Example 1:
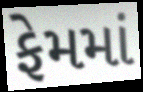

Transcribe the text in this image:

ફેમમાં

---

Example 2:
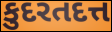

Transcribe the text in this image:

કુદરતદત્ત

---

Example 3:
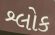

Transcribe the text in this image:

શ્લોક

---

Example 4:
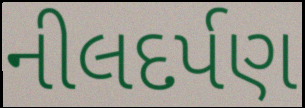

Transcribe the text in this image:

નીલદર્પણ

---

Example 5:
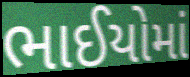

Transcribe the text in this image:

ભાઈયોમાં